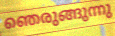
ഞെരുങ്ങുന്നു